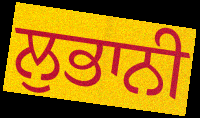
ਲੁਭਾਨੀ